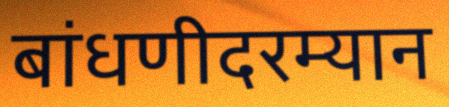
बांधणीदरम्यान